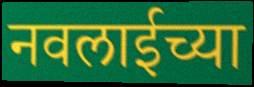
नवलाईच्या